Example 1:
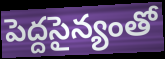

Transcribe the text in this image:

పెద్దసైన్యంతో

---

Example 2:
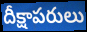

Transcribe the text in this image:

దీక్షాపరులు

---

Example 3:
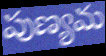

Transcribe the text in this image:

పుణ్యమ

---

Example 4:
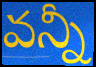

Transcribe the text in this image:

వన్నీ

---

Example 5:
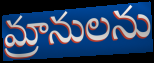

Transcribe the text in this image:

మ్రానులను